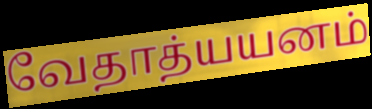
வேதாத்யயனம்